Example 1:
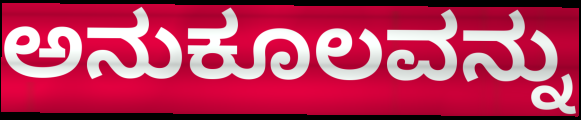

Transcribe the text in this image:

ಅನುಕೂಲವನ್ನು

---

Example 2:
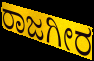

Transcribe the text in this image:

ರಾಜಗೀರ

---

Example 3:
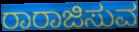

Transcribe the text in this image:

ರಾರಾಜಿಸುವ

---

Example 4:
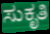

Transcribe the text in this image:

ಸುಕೃತಿ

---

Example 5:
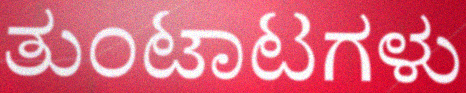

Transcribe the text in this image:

ತುಂಟಾಟಗಳು